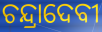
ଚନ୍ଦ୍ରାଦେବୀ